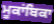
ਮੂਕਾਂਬਿਕਾ